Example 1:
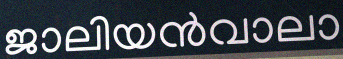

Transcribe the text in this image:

ജാലിയൻവാലാ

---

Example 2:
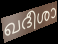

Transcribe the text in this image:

ഖദീശാ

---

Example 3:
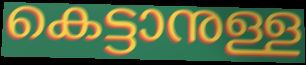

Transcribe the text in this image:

കെട്ടാനുള്ള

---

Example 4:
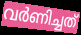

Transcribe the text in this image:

വർണിച്ചത്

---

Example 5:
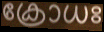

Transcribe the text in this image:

ക്രോധഃ